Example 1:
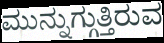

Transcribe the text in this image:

ಮುನ್ನುಗ್ಗುತ್ತಿರುವ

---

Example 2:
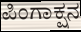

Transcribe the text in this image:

ಪಿಂಗಾಕ್ಷನ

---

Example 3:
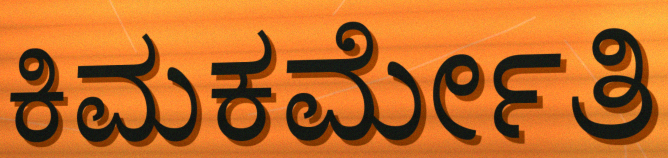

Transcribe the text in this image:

ಕಿಮಕರ್ಮೇತಿ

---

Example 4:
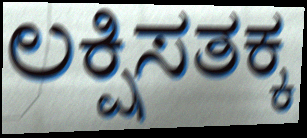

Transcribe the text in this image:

ಲಕ್ಷಿಸತಕ್ಕ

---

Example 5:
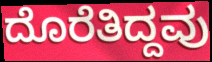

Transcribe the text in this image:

ದೊರೆತಿದ್ದವು